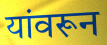
यांवरून